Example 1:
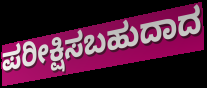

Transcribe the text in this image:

ಪರೀಕ್ಷಿಸಬಹುದಾದ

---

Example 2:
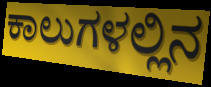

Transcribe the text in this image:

ಕಾಲುಗಳಲ್ಲಿನ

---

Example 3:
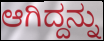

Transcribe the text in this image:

ಆಗಿದ್ದನ್ನು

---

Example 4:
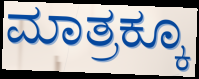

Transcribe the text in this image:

ಮಾತ್ರಕ್ಕೂ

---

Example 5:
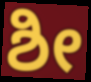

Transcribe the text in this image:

ಶೀ